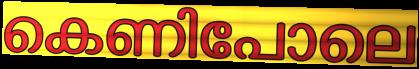
കെണിപോലെ